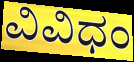
ವಿವಿಧಂ